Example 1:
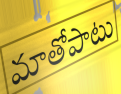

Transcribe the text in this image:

మాతోపాటు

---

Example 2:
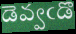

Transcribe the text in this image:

డెవ్వఁడొ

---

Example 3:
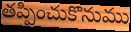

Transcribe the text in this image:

తప్పించుకొనుము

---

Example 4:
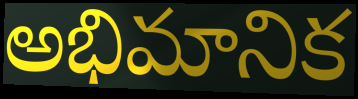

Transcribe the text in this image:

అభిమానిక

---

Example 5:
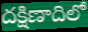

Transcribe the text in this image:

దక్షిణాదిలో